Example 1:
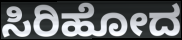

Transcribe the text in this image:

ಸಿರಿಹೋದ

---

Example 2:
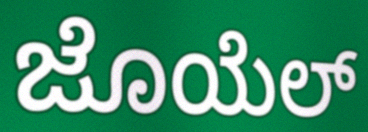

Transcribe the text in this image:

ಜೊಯೆಲ್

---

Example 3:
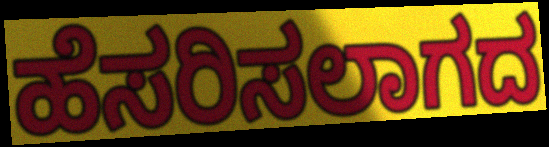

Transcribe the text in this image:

ಹೆಸರಿಸಲಾಗದ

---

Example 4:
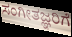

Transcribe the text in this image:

ಸಂಗೀತಜ್ಞರಿಗೆ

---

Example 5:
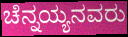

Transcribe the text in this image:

ಚೆನ್ನಯ್ಯನವರು